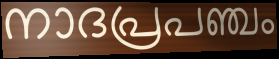
നാദപ്രപഞ്ചം